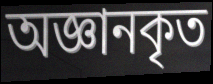
অজ্ঞানকৃত